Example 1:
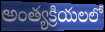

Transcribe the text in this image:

అంత్యక్రియలలో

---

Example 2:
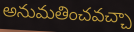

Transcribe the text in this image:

అనుమతించవచ్చా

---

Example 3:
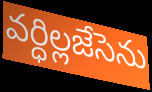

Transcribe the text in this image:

వర్ధిల్లజేసెను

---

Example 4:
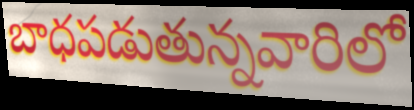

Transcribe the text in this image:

బాధపడుతున్నవారిలో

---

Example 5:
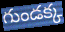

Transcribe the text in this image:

గుండక్క